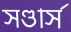
সণ্ডার্স